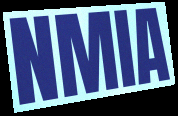
NMIA